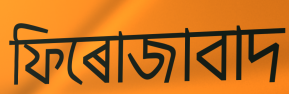
ফিৰোজাবাদ